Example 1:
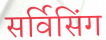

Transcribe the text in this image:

सर्विसिंग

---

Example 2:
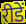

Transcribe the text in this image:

रीडें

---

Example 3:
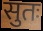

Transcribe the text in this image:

सुतः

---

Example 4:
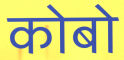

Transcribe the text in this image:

कोबो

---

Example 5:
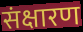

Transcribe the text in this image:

संक्षारण